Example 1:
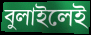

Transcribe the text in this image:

বুলাইলেই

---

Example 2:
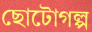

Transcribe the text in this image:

ছোটোগল্প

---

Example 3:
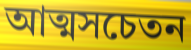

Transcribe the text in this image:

আত্মসচেতন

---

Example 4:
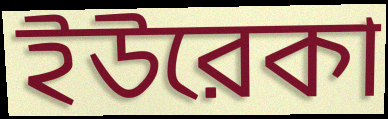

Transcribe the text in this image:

ইউরেকা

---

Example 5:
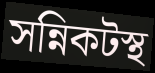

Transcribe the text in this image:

সন্নিকটস্থ